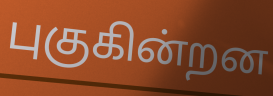
புகுகின்றன